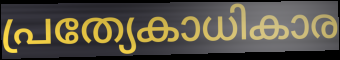
പ്രത്യേകാധികാര